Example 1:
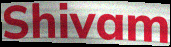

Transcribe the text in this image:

Shivam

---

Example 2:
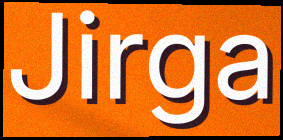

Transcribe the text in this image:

Jirga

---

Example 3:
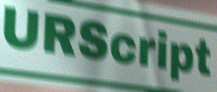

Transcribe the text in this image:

URScript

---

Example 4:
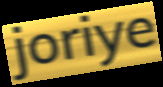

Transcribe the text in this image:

joriye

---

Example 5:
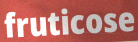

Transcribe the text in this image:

fruticose